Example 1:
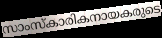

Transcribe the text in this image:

സാംസ്കാരികനായകരുടെ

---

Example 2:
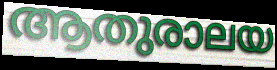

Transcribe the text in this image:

ആതുരാലയ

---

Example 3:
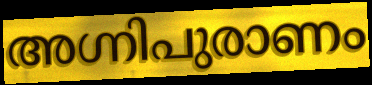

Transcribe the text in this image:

അഗ്നിപുരാണം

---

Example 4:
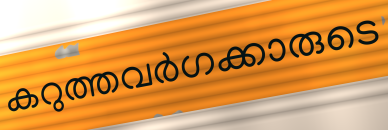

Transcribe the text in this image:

കറുത്തവർഗക്കാരുടെ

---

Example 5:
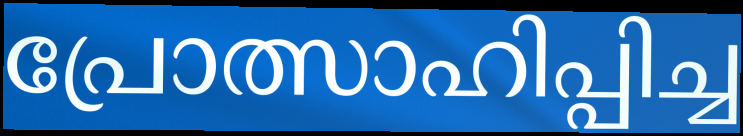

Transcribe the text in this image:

പ്രോത്സാഹിപ്പിച്ച